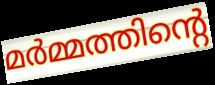
മർമ്മത്തിന്റെ